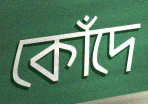
কোঁদে